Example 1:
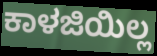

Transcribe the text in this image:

ಕಾಳಜಿಯಿಲ್ಲ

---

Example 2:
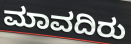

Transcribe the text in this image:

ಮಾವದಿರು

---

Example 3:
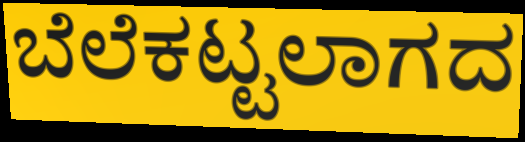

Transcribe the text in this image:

ಬೆಲೆಕಟ್ಟಲಾಗದ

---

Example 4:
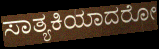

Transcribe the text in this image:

ಸಾತ್ಯಕಿಯಾದರೋ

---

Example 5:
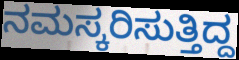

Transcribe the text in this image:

ನಮಸ್ಕರಿಸುತ್ತಿದ್ದ